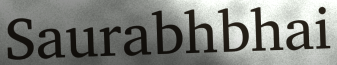
Saurabhbhai